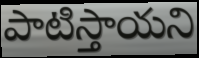
పాటిస్తాయని